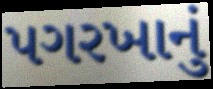
પગરખાનું